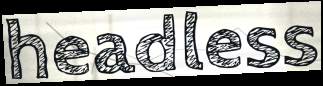
headless